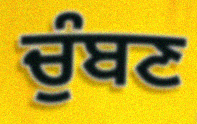
ਚੁੰਬਣ